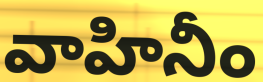
వాహినీం